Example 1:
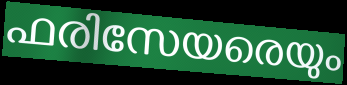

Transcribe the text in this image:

ഫരിസേയരെയും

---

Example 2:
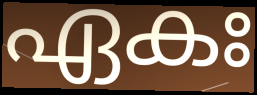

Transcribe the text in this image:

ഏകഃ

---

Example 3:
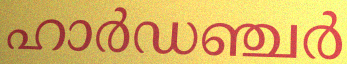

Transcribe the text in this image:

ഹാർഡഞ്ചർ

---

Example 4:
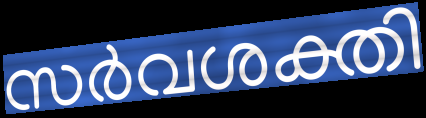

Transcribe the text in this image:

സർവശക്തി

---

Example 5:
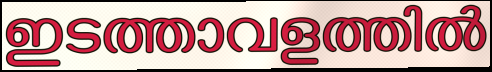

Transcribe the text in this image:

ഇടത്താവളത്തിൽ